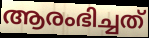
ആരംഭിച്ചത്